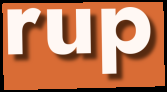
rup